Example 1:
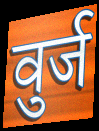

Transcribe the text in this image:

वुर्ज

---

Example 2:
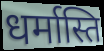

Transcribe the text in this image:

धर्मास्ति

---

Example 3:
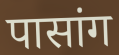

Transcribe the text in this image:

पासांग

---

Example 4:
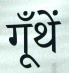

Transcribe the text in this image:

गूँथें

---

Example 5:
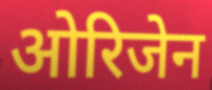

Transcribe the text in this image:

ओरिजेन